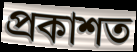
প্ৰকাশত